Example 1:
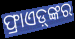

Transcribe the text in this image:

ଫ୍ରାଏଡ଼୍‍ଙ୍କର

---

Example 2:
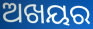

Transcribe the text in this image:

ଅଖୟର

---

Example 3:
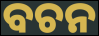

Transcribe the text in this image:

ବଚନ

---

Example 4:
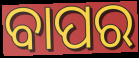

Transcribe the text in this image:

ବାପର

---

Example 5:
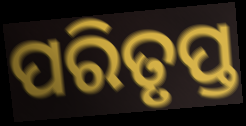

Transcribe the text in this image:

ପରିତୃପ୍ତ